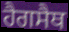
ਹੈਗਸੈਥ